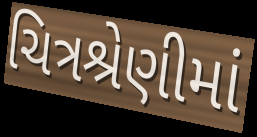
ચિત્રશ્રેણીમાં